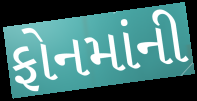
ફોનમાંની